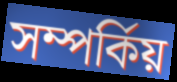
সম্পৰ্কিয়